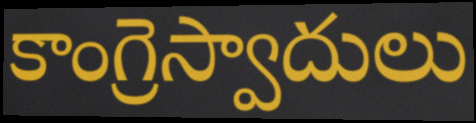
కాంగ్రెస్వాదులు